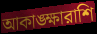
আকাঙ্ক্ষারাশি